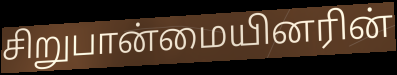
சிறுபான்மையினரின்